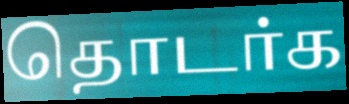
தொடர்க